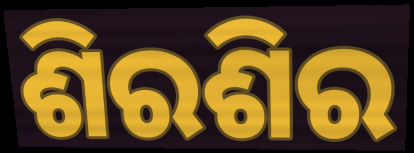
ଶିରଶିର